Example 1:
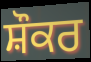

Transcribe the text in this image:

ਸ਼ੌਕਰ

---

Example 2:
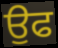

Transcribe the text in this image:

ਉਫ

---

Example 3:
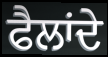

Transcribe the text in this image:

ਫੈਲਾਂਦੇ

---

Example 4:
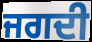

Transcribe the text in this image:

ਜਗਦੀ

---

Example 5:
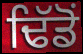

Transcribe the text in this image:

ਢਿੱਡੋਂ